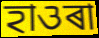
হাওৰা